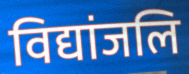
विद्यांजलि